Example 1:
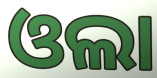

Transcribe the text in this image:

ଓଲା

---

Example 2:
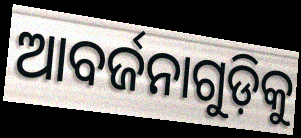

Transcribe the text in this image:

ଆବର୍ଜନାଗୁଡ଼ିକୁ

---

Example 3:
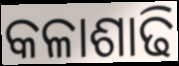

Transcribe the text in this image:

କଳାଶାଢି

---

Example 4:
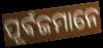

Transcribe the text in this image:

ପୂର୍ଵଜମାନେ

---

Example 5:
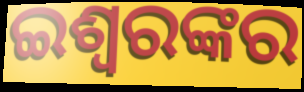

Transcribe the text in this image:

ଇଶ୍ୱରଙ୍କର